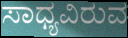
ಸಾಧ್ಯವಿರುವ